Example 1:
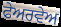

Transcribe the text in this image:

ਫੇਅਰਵੇਅ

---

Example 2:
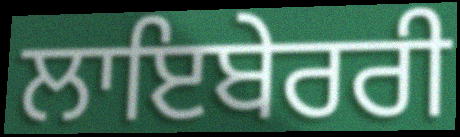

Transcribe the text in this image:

ਲਾਇਬੇਰਰੀ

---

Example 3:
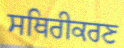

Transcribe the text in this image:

ਸਥਿਰੀਕਰਣ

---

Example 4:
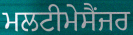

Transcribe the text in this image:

ਮਲਟੀਮੇਸੈਂਜਰ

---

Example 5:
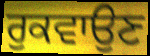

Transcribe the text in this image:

ਰੁਕਵਾਉਣ